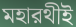
মহারথীই